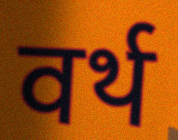
वर्थ